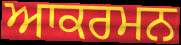
ਆਕਰਮਨ